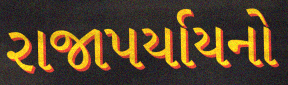
રાજાપર્યાયનો